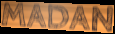
MADAN